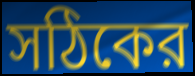
সঠিকের